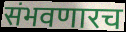
संभवणारच